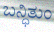
ಬನ್ಧಿತುಂ